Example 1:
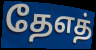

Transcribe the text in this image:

தேஎத்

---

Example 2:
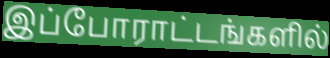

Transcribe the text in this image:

இப்போராட்டங்களில்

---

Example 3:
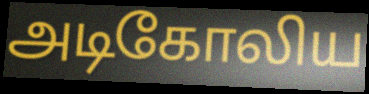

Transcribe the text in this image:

அடிகோலிய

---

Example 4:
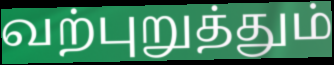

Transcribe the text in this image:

வற்புறுத்தும்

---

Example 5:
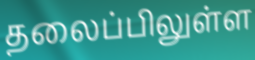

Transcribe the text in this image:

தலைப்பிலுள்ள